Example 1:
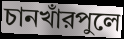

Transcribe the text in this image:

চানখাঁরপুলে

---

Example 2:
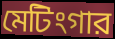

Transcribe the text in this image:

মেটিংগার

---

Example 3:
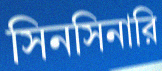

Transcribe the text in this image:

সিনসিনারি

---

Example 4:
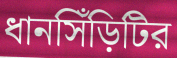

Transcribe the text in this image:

ধানসিঁড়িটির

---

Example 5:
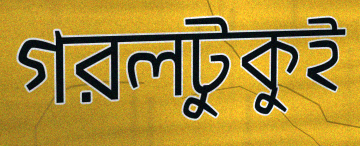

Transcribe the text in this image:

গরলটুকুই